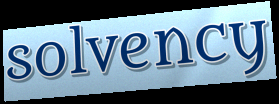
solvency